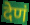
देणं